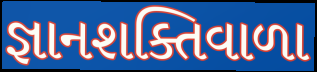
જ્ઞાનશક્તિવાળા